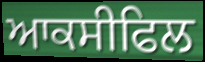
ਆਕਸੀਫਿਲ